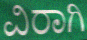
ವಿರಾಗಿ